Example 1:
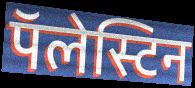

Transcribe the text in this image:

पॅलेस्टिन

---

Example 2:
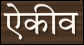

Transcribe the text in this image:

ऐकीव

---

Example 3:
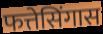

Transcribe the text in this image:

फत्तेसिंगास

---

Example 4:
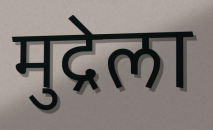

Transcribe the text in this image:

मुद्रेला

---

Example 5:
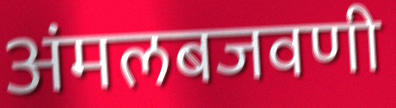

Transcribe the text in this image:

अंमलबजवणी